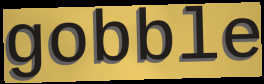
gobble